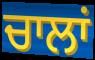
ਚਾਲਾਂ